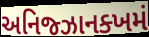
અનિજ્ઝાનક્ખમં